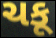
ચકૂ